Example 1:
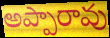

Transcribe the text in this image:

అప్పారావు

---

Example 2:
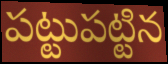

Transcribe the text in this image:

పట్టుపట్టిన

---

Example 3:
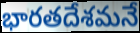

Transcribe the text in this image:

భారతదేశమనే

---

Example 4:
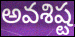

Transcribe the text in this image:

అవశిష్ట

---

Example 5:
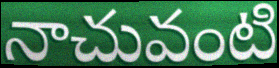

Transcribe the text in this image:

నాచువంటి